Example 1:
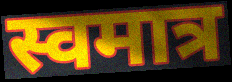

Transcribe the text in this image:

स्वमात्र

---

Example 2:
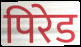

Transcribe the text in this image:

पिरेड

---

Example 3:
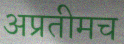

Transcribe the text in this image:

अप्रतीमच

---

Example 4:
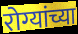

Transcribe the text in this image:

रोग्यांच्या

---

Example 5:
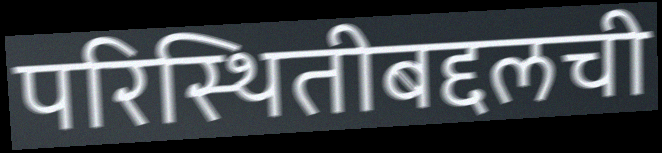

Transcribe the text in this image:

परिस्थितीबद्दलची